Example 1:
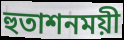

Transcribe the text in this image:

হুতাশনময়ী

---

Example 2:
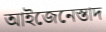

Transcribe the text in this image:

আইজেনেস্তাদ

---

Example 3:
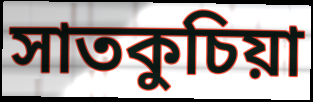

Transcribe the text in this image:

সাতকুচিয়া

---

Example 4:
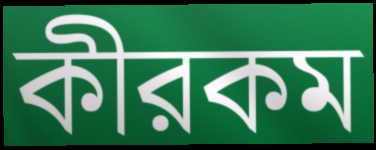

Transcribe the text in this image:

কীরকম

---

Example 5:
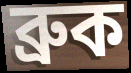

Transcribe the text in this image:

ব্রুক